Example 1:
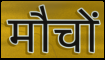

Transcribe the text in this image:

मौचों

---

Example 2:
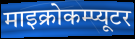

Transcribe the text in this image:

माइक्रोकम्प्यूटर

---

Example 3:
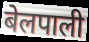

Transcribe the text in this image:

बेलपाली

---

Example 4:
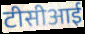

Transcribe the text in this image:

टीसीआई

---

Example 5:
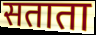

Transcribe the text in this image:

सताता